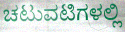
ಚಟುವಟಿಗಳಲ್ಲಿ